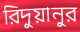
রিদুয়ানুর